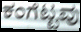
ಕಂಗೆಟ್ಟವು